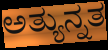
ಅತ್ಯುನ್ನತ